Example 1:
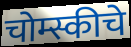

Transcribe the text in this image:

चोम्स्कीचे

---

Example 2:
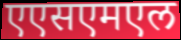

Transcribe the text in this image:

एएसएमएल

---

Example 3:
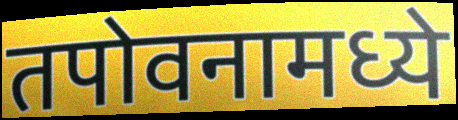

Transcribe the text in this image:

तपोवनामध्ये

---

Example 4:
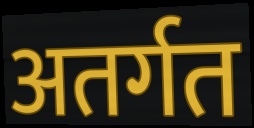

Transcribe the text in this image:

अतर्गत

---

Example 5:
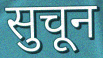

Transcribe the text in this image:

सुचून